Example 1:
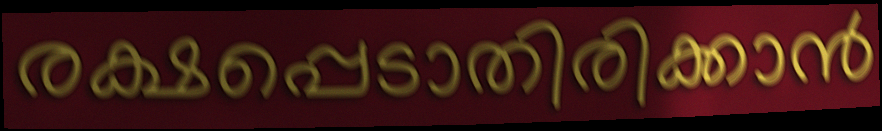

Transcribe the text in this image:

രക്ഷപ്പെടാതിരിക്കാൻ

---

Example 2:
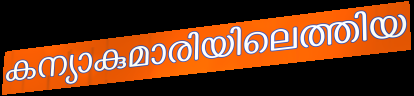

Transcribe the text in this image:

കന്യാകുമാരിയിലെത്തിയ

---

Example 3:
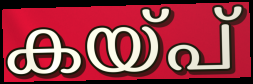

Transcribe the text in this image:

കയ്പ്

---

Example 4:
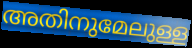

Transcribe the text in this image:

അതിനുമേലുള്ള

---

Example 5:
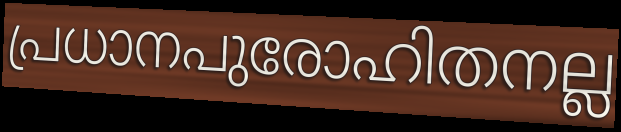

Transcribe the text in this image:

പ്രധാനപുരോഹിതനല്ല